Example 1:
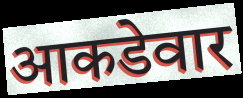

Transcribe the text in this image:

आकडेवार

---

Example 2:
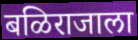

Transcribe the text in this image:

बळिराजाला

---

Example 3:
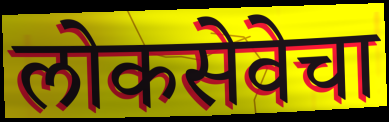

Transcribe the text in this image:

लोकसेवेचा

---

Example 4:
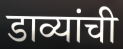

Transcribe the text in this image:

डाव्यांची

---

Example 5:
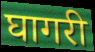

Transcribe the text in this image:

घागरी